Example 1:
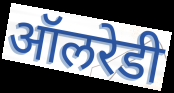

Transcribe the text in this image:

ऑलरेडी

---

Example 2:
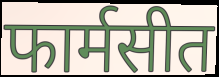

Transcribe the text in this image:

फार्मसीत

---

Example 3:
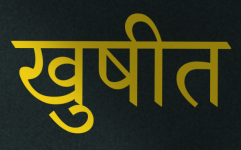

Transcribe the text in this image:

खुषीत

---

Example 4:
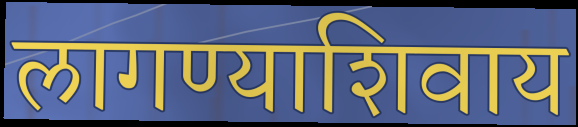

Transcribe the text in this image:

लागण्याशिवाय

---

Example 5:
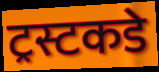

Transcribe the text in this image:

ट्रस्टकडे